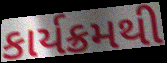
કાર્યક્રમથી